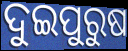
ଦୁଇପୁରୁଷ